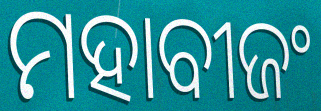
ମହାବୀଜଂ